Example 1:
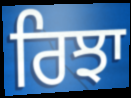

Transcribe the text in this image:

ਰਿਝਾ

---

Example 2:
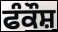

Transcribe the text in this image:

ਫੰਕੌਸ਼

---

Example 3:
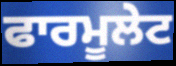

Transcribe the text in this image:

ਫਾਰਮੂਲੇਟ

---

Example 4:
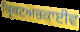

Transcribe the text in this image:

ਕ੍ਰਿਕਟਅਰਕਾਈਵ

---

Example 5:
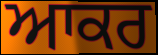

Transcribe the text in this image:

ਆਕਰ